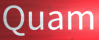
Quam